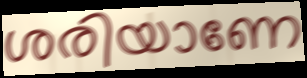
ശരിയാണേ